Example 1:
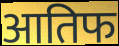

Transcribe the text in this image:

आतिफ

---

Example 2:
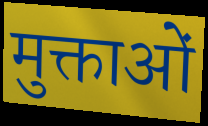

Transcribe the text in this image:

मुक्ताओं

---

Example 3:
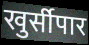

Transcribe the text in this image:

खुर्सीपार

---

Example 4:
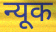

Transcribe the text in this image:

न्यूक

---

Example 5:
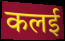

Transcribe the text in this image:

कलई